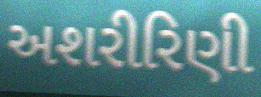
અશરીરિણી